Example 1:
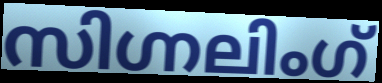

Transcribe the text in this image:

സിഗ്നലിംഗ്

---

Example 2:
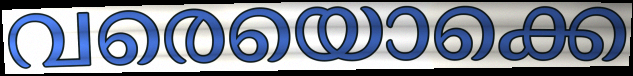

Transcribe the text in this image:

വരെയൊക്കെ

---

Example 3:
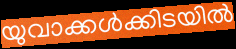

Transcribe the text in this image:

യുവാക്കൾക്കിടയിൽ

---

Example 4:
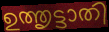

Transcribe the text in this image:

ഉത്തൃട്ടാതി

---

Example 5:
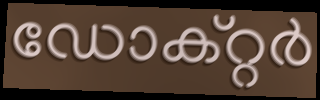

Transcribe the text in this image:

ഡോക്റ്റർ